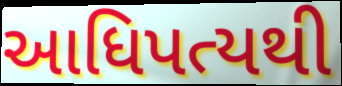
આધિપત્યથી